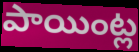
పాయింట్ల